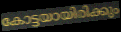
കോട്ടയായിരിക്കും